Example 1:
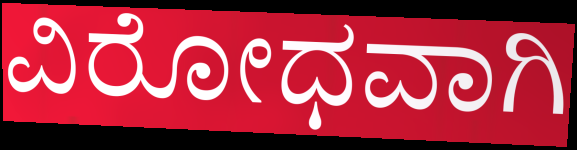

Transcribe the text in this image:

ವಿರೋಧವಾಗಿ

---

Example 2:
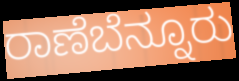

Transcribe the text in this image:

ರಾಣೆಬೆನ್ನೂರು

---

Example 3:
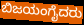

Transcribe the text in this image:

ಬಿಜಯಂಗೈದರು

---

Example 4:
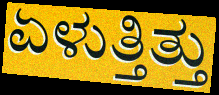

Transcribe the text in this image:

ಏಳುತ್ತಿತ್ತು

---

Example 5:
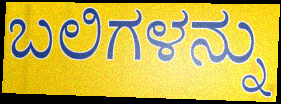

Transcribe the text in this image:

ಬಲಿಗಳನ್ನು